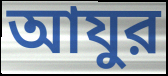
আযুর